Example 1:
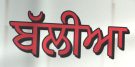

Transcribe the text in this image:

ਬੱਲੀਆ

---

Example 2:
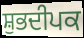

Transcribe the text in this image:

ਸ਼ੁਭਦੀਪਕ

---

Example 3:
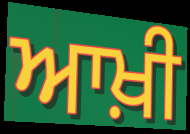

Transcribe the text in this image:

ਆਖ਼ੀ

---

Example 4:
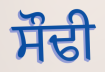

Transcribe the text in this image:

ਸੌਢੀ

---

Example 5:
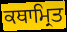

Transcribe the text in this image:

ਕਥਾਮ੍ਰਿਤ